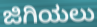
ಜಿಗಿಯಲು